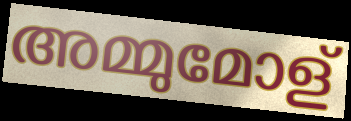
അമ്മുമോള്